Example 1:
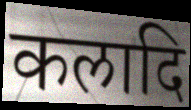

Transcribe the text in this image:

कलादि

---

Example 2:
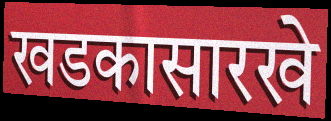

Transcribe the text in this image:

खडकासारखे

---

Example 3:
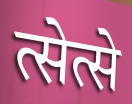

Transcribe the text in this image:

त्सेत्से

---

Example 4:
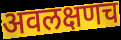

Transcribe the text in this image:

अवलक्षणच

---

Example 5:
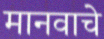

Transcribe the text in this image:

मानवाचे